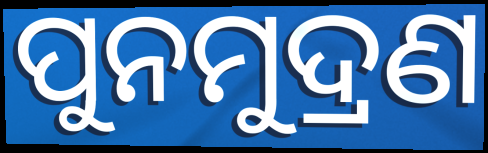
ପୁନମୁଦ୍ରଣ